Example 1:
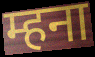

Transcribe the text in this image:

म्हना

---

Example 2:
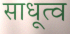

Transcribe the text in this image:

साधूत्व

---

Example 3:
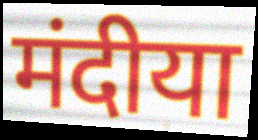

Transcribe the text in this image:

मंदीया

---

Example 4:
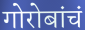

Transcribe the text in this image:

गोरोबांचं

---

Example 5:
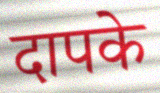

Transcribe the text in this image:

दापके